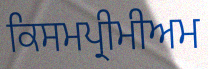
ਕਿਸਮਪ੍ਰੀਮੀਅਮ